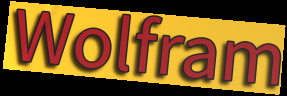
Wolfram